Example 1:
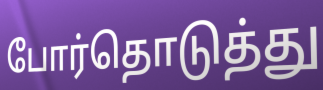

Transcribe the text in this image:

போர்தொடுத்து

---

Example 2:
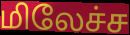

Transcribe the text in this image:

மிலேச்ச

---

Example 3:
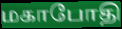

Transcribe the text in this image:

மகாபோதி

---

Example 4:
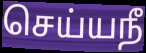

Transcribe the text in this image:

செய்யநீ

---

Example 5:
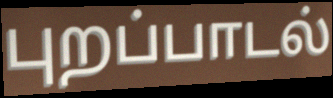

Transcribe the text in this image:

புறப்பாடல்